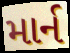
માર્ન